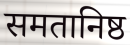
समतानिष्ठ